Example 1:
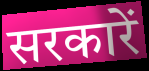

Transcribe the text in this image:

सरकारें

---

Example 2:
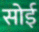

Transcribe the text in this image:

सोई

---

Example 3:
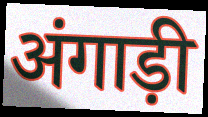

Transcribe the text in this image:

अंगाड़ी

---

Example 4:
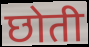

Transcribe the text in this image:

छोती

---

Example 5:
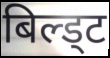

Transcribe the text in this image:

बिल्ड्ट